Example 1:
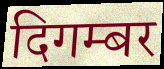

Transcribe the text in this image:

दिगम्बर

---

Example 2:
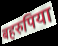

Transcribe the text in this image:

बहरुपिया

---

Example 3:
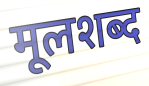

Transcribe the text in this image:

मूलशब्द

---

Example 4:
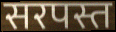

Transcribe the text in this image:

सरपस्त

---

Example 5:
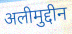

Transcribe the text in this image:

अलीमुद्दीन